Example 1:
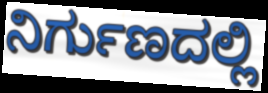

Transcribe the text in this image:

ನಿರ್ಗುಣದಲ್ಲಿ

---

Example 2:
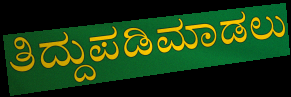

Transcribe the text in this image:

ತಿದ್ದುಪಡಿಮಾಡಲು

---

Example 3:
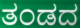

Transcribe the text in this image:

ತಂಡದ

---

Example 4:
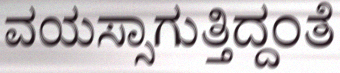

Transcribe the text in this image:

ವಯಸ್ಸಾಗುತ್ತಿದ್ದಂತೆ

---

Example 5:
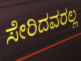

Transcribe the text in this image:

ಸೇರಿದವರಲ್ಲ